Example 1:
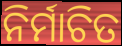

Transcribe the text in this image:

ନିର୍ମାଚିତ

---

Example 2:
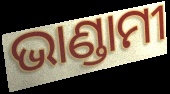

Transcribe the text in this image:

ଭାଣ୍ଡାମୀ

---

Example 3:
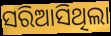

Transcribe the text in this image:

ସରିଆସିଥିଲା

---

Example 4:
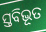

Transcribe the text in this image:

ସ୍ତବିଭୂତ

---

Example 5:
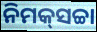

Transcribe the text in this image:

ନିମକ୍‍ସଚ୍ଚା